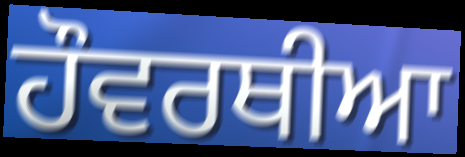
ਹੌਵਰਥੀਆ